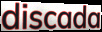
discada